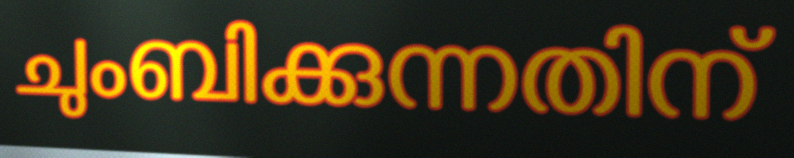
ചുംബിക്കുന്നതിന്